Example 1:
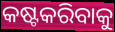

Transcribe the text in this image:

କଷ୍ଟକରିବାକୁ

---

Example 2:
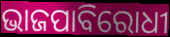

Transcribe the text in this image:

ଭାଜପାବିରୋଧୀ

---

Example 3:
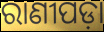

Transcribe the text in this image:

ରାଣୀପଡ଼ା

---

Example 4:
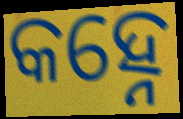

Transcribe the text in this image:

କହ୍ନେ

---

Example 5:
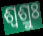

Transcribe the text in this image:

ଶ୍ଵଶ୍ରୁଃ